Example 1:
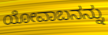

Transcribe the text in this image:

ಯೋವಾಬನನ್ನು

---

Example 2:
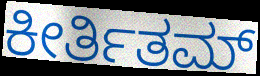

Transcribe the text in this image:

ಕೀರ್ತಿತಮ್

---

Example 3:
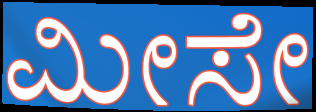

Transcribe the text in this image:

ಮೀಸೇ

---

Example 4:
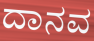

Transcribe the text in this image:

ದಾನವ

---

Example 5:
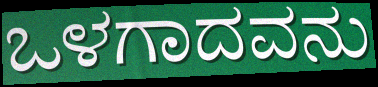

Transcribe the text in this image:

ಒಳಗಾದವನು